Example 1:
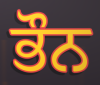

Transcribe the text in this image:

ਭੌਨ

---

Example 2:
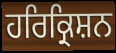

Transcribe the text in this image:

ਹਰਿਕ੍ਰਿਸ਼ਨ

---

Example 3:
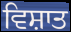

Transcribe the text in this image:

ਵਿਸ਼ਾਤ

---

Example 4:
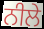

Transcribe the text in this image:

ਨੀਲੇ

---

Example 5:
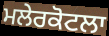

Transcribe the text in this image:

ਮਲੇਰਕੋਟਲਾ